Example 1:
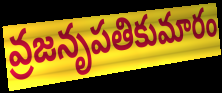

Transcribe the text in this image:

వ్రజనృపతికుమారం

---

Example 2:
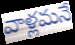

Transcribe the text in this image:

వాళ్లమనే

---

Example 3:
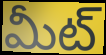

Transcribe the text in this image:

మీట్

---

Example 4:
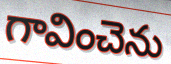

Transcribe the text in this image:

గావించెను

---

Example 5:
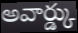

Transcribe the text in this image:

అవార్డ్కు